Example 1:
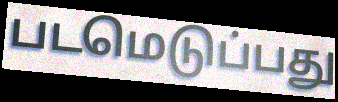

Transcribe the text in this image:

படமெடுப்பது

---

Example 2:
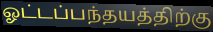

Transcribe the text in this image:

ஓட்டப்பந்தயத்திற்கு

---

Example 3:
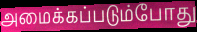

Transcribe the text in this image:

அமைக்கப்படும்போது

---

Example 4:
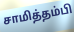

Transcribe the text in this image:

சாமித்தம்பி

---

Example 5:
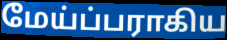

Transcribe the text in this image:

மேய்ப்பராகிய